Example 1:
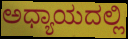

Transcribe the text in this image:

ಅಧ್ಯಾಯದಲ್ಲಿ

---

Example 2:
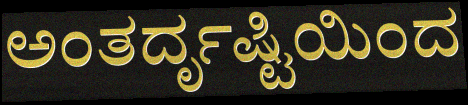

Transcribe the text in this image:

ಅಂತರ್ದೃಷ್ಟಿಯಿಂದ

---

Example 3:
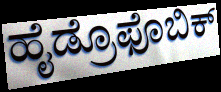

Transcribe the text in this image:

ಹೈಡ್ರೊಫೊಬಿಕ್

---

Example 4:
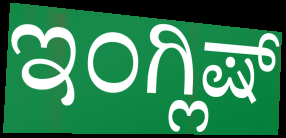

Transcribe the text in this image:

ಇಂಗ್ಲಿಷ್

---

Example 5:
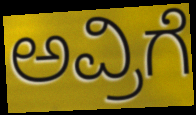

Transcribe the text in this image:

ಅವ್ರಿಗೆ